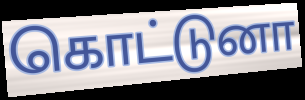
கொட்டுனா